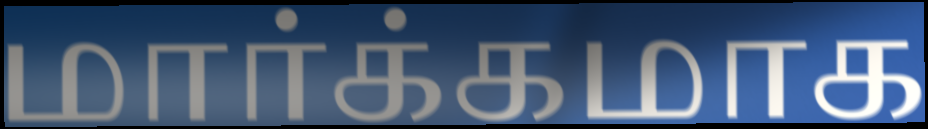
மார்க்கமாக